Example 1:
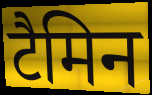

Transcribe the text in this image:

टैमिन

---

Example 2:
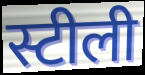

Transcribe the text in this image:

स्टीली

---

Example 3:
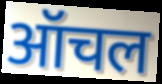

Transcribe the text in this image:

ऑचल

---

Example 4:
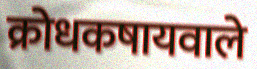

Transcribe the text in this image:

क्रोधकषायवाले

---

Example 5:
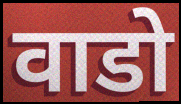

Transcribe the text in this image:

वाडो